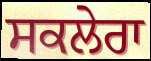
ਸਕਲੇਰਾ